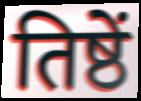
तिष्ठें